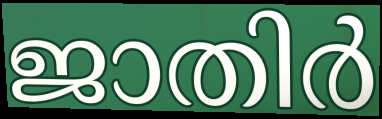
ജാതിർ